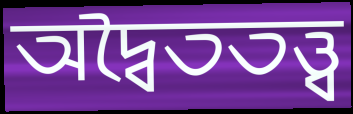
অদ্বৈততত্ত্ব